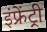
इंफ्रेंट्री